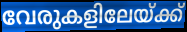
വേരുകളിലേയ്ക്ക്